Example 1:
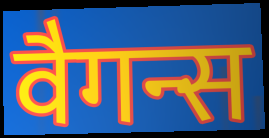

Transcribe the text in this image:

वैगन्स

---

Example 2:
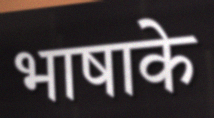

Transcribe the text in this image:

भाषाके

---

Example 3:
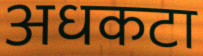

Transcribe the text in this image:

अधकटा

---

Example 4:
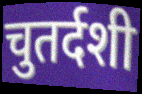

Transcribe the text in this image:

चुतर्दशी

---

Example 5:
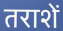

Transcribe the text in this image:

तराशें